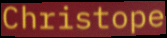
Christope